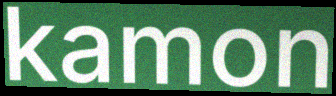
kamon